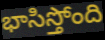
భాసిస్తోంది